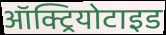
ऑक्ट्रियोटाइड